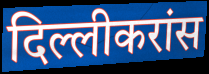
दिल्लीकरांस